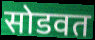
सोडवत